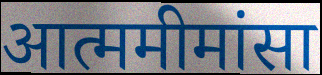
आत्ममीमांसा